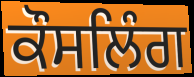
ਕੌਸਲਿੰਗ